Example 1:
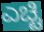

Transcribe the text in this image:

ಎಚ್ಟಿ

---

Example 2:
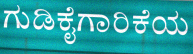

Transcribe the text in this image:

ಗುಡಿಕೈಗಾರಿಕೆಯ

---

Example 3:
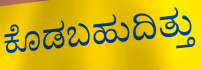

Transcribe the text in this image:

ಕೊಡಬಹುದಿತ್ತು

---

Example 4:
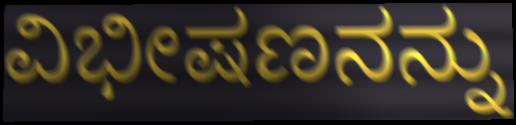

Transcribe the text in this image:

ವಿಭೀಷಣನನ್ನು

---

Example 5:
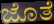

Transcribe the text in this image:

ಜೊತೆ